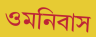
ওমনিবাস